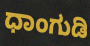
ಧಾಂಗುಡಿ